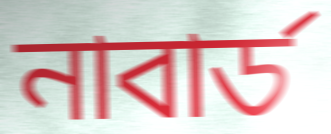
নাবার্ড